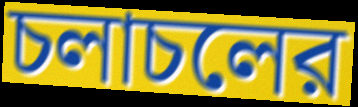
চলাচলের